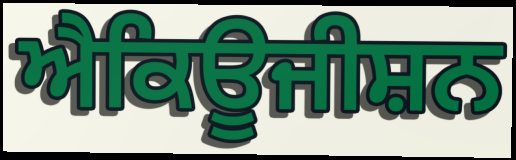
ਐਕਿਊਜੀਸ਼ਨ